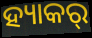
ହ୍ୟାକର୍